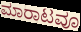
ಮಾರಾಟವೂ